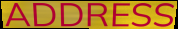
ADDRESS